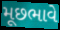
મૂછભાવે